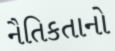
નૈતિકતાનો